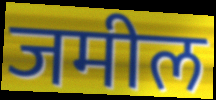
जमील